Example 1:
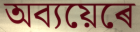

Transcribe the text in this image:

অব্যয়েৰে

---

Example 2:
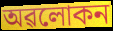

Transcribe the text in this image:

অৱলোকন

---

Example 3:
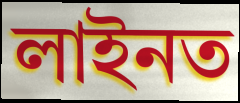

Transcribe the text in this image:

লাইনত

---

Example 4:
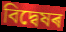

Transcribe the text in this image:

বিদ্বেষৰ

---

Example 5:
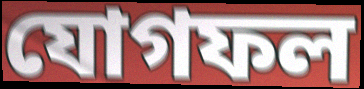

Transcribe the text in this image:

যোগফল